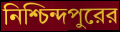
নিশ্চিন্দপুরের